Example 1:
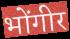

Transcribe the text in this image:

भोंगीर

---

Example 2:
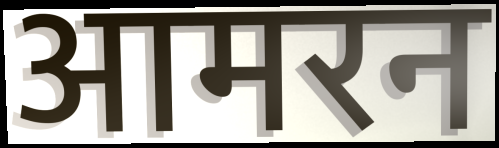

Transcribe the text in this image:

आमरन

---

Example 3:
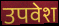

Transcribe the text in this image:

उपवेश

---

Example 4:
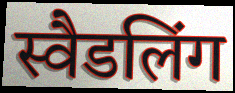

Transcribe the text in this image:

स्वैडलिंग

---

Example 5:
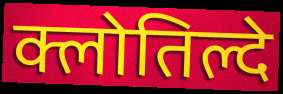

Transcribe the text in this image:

क्लोतिल्दे